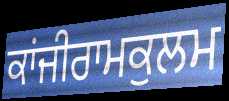
ਕਾਂਜੀਰਾਮਕੁਲਮ